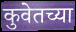
कुवेतच्या